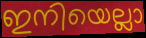
ഇനിയെല്ലാ